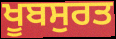
ਖੂਬਸੁਰਤ